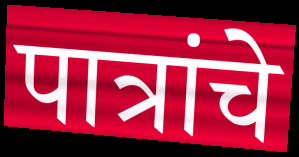
पात्रांचे